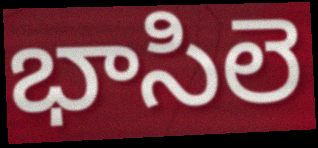
భాసిలె